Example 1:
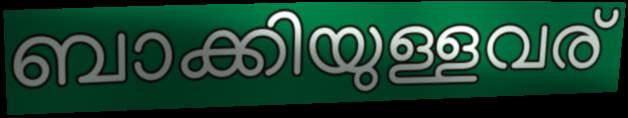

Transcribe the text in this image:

ബാക്കിയുള്ളവര്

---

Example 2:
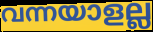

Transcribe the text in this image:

വന്നയാളല്ല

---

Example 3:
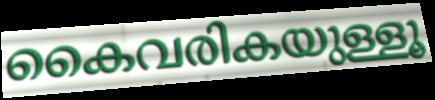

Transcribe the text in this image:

കൈവരികയുള്ളൂ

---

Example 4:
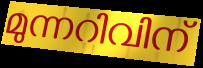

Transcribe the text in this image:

മുന്നറിവിന്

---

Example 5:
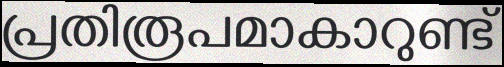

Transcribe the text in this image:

പ്രതിരൂപമാകാറുണ്ട്